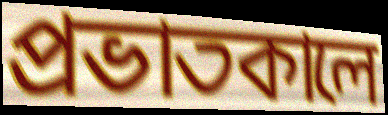
প্রভাতকালে